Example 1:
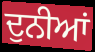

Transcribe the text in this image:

ਦੁਨੀਆਂ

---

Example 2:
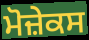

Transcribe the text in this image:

ਮੋਜ਼ੇਕਸ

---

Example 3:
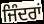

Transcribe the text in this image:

ਜਿੰਦਰਾਂ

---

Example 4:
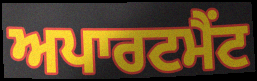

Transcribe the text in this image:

ਅਪਾਰਟਮੈਂਟ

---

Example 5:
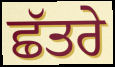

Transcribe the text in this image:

ਛੱਤਰੇ